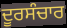
ਦੂਰਸੰਚਾਰ